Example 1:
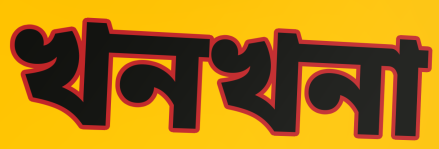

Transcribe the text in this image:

খনখনা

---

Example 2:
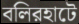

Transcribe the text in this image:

বলিরহাটে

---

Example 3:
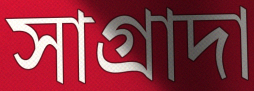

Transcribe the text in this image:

সাগ্রাদা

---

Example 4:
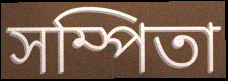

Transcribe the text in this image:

সম্পিতা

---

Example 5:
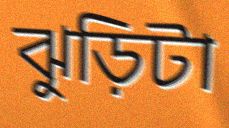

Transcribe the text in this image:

ঝুড়িটা